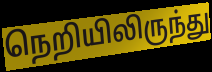
நெறியிலிருந்து